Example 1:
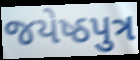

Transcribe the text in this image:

જયેષ્ઠપુત્ર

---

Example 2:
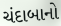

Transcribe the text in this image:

ચંદાબાનો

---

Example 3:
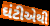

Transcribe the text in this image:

ઘંટીએથી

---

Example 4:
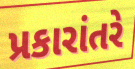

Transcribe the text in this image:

પ્રકારાંતરે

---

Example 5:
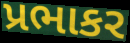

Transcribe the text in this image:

પ્રભાકર